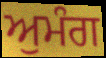
ਅੁਮੰਗ